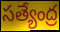
సత్యేంద్ర